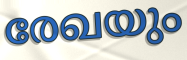
രേഖയും